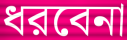
ধরবেনা